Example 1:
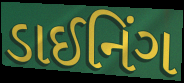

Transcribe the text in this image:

ડાઈનિંગ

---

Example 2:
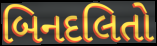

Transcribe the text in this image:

બિનદલિતો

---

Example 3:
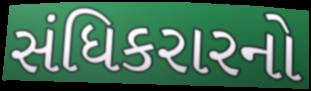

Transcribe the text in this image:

સંધિકરારનો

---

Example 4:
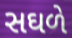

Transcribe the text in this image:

સઘળે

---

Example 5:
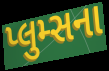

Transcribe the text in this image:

પ્લુમ્સના